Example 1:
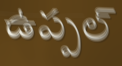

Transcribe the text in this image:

ఉప్పల్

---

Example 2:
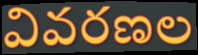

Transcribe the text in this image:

వివరణల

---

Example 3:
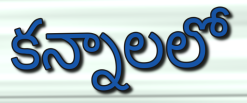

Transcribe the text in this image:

కన్నాలలో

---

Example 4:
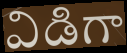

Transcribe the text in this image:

విడిగా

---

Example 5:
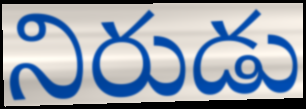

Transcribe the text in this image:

నిరుడు